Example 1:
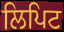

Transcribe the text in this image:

ਲਿਪਿਟ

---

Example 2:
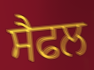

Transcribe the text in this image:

ਸੈਫਲ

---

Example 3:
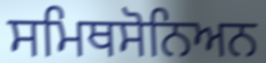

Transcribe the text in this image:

ਸਮਿਥਸੋਨਿਅਨ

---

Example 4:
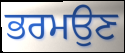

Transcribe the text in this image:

ਭਰਮਉਣ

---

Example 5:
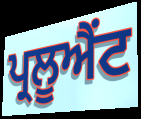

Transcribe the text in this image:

ਪ੍ਰਲੂਐਂਟ